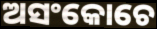
ଅସଂକୋଚେ